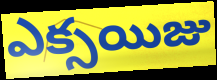
ఎక్సయిజు